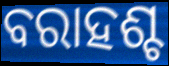
ବରାହଶ୍ଚ